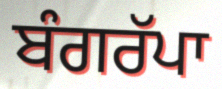
ਬੰਗਰੱਪਾ